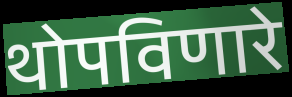
थोपविणारे